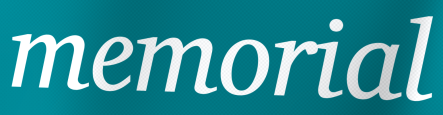
memorial